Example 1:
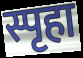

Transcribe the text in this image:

स्पृहा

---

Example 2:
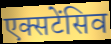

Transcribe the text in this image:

एक्सटेंसिव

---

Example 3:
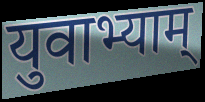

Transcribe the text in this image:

युवाभ्याम्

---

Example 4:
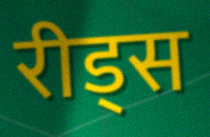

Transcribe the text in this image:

रीड्स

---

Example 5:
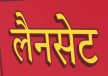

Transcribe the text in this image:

लैनसेट